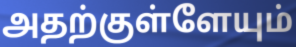
அதற்குள்ளேயும்